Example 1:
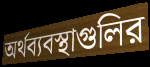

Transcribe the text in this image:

অর্থব্যবস্থাগুলির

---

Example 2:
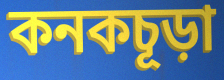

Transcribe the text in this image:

কনকচূড়া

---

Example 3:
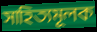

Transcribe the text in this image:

সাহিত্যমূলক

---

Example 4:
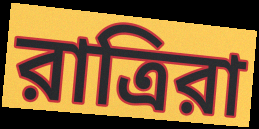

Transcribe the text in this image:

রাত্রিরা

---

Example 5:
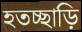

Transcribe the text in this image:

হতচ্ছাড়ি